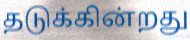
தடுக்கின்றது